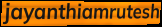
jayanthiamrutesh